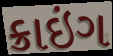
ક્રાઇંગ